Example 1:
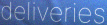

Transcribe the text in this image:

deliveries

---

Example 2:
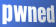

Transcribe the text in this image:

pwned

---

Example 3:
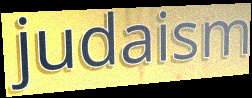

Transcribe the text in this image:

judaism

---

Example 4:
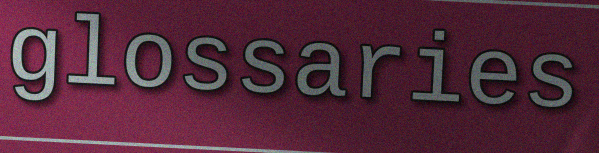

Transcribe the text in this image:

glossaries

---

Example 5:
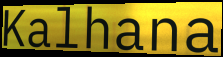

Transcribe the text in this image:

Kalhana